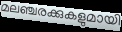
മലഞ്ചരക്കുകളുമായി